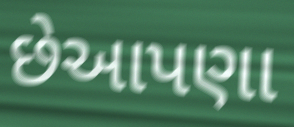
છેઆપણા